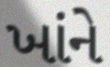
ખાંને